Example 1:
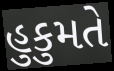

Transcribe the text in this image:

હુકુમતે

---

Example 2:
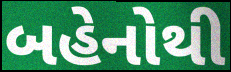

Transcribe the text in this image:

બહેનોથી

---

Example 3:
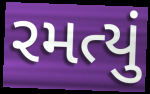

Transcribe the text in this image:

રમત્યું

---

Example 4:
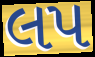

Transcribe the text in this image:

લપ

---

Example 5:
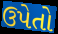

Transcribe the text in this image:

ઉપેતો